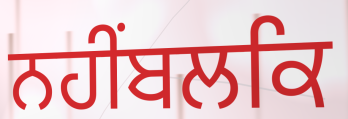
ਨਹੀਂਬਲਕਿ